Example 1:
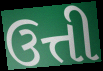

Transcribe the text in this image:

ઉત્તી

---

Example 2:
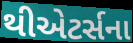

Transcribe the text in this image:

થીએટર્સના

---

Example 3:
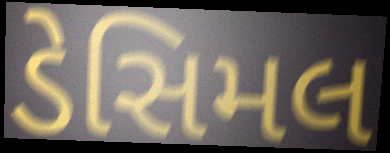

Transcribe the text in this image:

ડેસિમલ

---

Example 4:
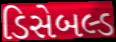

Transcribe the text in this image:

ડિસેબલ્ડ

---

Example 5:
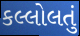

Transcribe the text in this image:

કલ્લોલતું